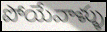
పోయేవాళ్ళు